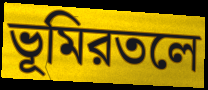
ভূমিরতলে